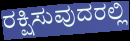
ರಕ್ಷಿಸುವುದರಲ್ಲಿ